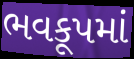
ભવકૂપમાં